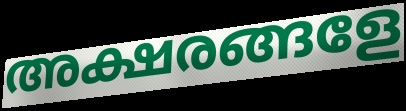
അക്ഷരങ്ങളേ